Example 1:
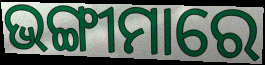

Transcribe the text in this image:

ଭଙ୍ଗୀମାରେ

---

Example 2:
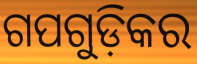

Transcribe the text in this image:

ଗପଗୁଡ଼ିକର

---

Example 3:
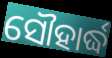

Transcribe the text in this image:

ସୌହାର୍ଦ୍ଧ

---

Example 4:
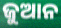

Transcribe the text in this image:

ଜୁଆନ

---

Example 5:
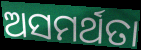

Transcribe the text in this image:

ଅସମର୍ଥତା